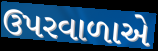
ઉપરવાળાએ